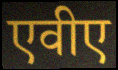
एवीए